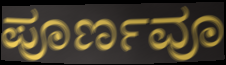
ಪೂರ್ಣವೂ